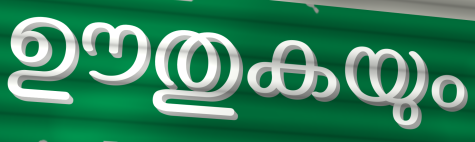
ഊതുകയും